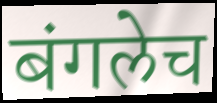
बंगलेच